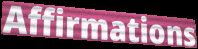
Affirmations